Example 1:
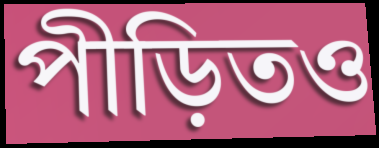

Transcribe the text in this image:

পীড়িতও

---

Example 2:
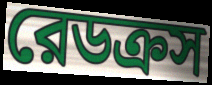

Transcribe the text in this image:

রেডক্রস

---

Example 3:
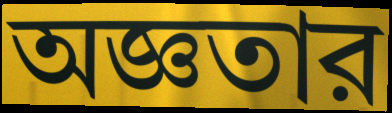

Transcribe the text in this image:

অজ্ঞতার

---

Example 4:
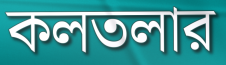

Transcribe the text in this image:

কলতলার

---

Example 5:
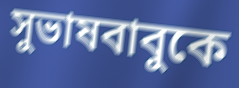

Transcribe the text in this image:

সুভাষবাবুকে